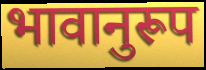
भावानुरूप